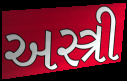
અસ્ત્રી